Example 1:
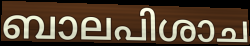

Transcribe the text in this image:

ബാലപിശാച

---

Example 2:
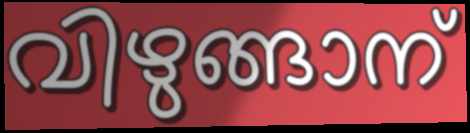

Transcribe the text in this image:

വിഴുങ്ങാന്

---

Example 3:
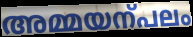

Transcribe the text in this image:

അമ്മയന്പലം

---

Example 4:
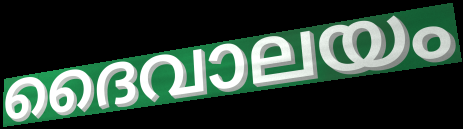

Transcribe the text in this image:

ദൈവാലയം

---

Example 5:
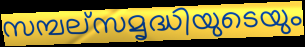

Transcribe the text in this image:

സമ്പല്സമൃദ്ധിയുടെയും